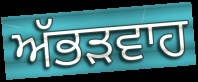
ਅੱਭੜਵਾਹ